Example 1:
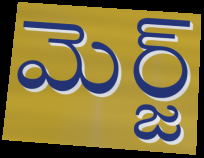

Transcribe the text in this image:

మెర్జ్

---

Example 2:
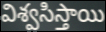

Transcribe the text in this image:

విశ్వసిస్తాయి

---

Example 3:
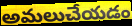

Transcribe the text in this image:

అమలుచేయడం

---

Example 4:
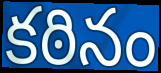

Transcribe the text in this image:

కఠినం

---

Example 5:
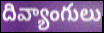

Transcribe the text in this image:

దివ్యాంగులు